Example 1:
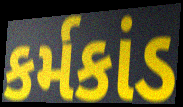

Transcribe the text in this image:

કર્મકાંડ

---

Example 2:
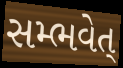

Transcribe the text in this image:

સમ્ભવેત્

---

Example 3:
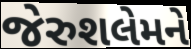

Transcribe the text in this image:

જેરુશલેમને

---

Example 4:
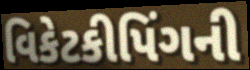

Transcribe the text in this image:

વિકેટકીપિંગની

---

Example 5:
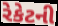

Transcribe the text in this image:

રેકેટની